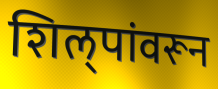
शिल्पांवरून